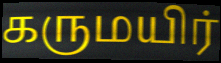
கருமயிர்